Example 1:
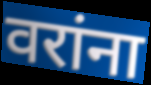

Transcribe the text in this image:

वरांना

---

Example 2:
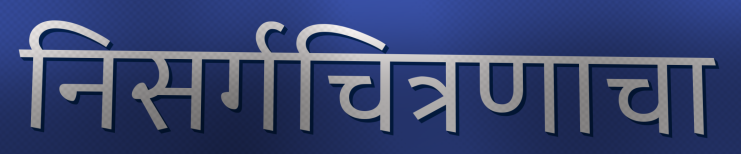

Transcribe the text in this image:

निसर्गचित्रणाचा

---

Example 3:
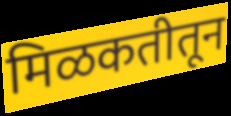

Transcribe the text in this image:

मिळकतीतून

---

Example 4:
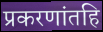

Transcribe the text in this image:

प्रकरणांतहि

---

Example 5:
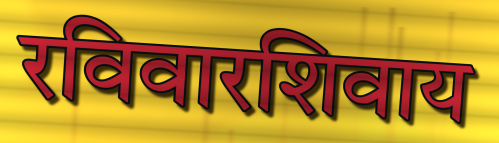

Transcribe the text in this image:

रविवारशिवाय